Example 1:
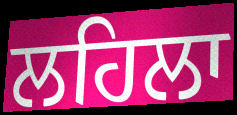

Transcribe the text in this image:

ਲਹਿਲਾ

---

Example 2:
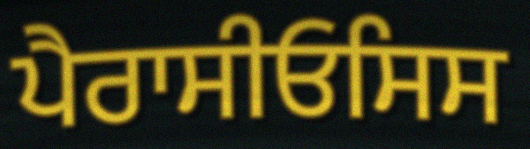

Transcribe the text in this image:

ਪੈਰਾਸੀਓਸਿਸ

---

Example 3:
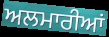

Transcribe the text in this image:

ਅਲਮਾਰੀਆਂ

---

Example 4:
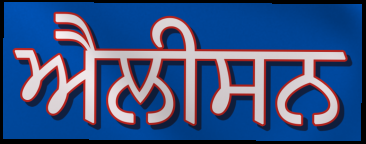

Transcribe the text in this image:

ਐਲੀਸਨ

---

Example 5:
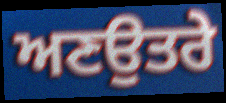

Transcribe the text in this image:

ਅਣਉਤਰੇ